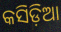
କସିଡ଼ିଆ